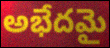
అభేదమై